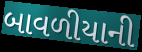
બાવળીયાની